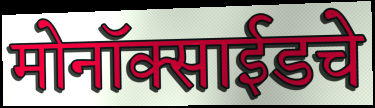
मोनॉक्साईडचे